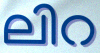
ലിറ